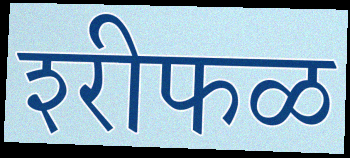
श्रीफळ